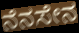
ನೆನಸೇನ